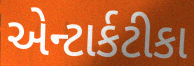
એન્ટાર્કટીકા